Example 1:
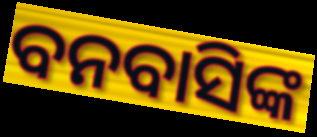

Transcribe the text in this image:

ବନବାସିଙ୍କ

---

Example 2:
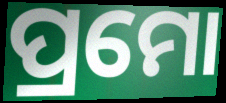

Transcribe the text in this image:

ପ୍ରମୋ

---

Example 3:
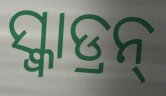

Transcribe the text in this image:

ସ୍କ୍ୱାଡ୍ରନ୍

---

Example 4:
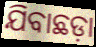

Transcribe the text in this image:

ଯିବାଛଡ଼ା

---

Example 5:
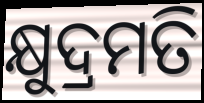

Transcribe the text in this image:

କ୍ଷୁଦ୍ରମତି